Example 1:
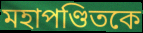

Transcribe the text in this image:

মহাপণ্ডিতকে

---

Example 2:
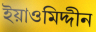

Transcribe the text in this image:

ইয়াওমিদ্দীন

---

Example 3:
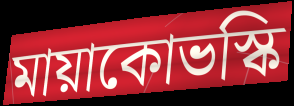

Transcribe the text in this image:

মায়াকোভস্কি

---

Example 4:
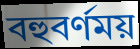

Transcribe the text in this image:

বহুবর্ণময়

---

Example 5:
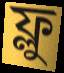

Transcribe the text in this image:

ফ্লু